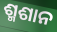
ଶ୍ମଶାନ